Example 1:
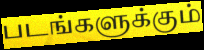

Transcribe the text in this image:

படங்களுக்கும்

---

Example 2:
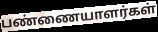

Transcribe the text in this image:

பண்ணையாளர்கள்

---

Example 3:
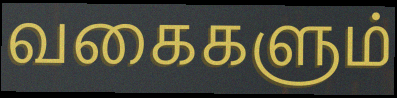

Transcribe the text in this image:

வகைகளும்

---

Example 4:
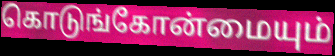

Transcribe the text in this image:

கொடுங்கோன்மையும்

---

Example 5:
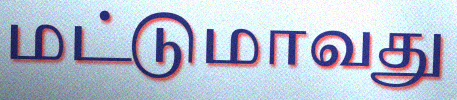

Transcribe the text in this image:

மட்டுமாவது